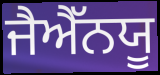
ਜੈਐੱਨਯੂ